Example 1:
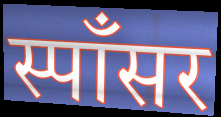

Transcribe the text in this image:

स्पॉंसर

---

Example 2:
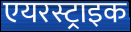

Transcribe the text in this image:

एयरस्ट्राइक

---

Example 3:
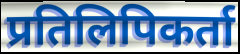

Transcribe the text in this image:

प्रतिलिपिकर्ता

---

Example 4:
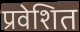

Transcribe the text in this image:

प्रवेशित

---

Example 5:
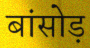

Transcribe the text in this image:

बांसोड़